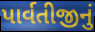
પાર્વતીજીનું